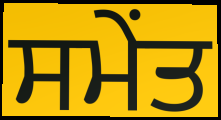
ਸਮੇਂਤ